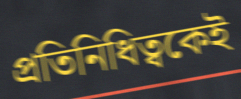
প্রতিনিধিত্বকেই